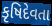
કૃષિદેવતા